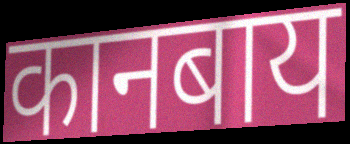
कानबाय